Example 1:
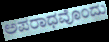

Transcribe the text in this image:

ಅಪರಾಧವೊಂದು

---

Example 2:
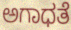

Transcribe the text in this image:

ಅಗಾಧತೆ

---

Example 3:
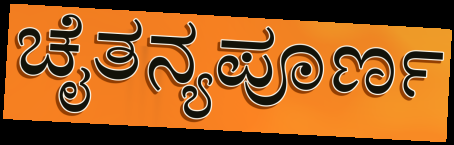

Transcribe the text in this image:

ಚೈತನ್ಯಪೂರ್ಣ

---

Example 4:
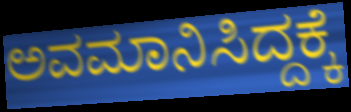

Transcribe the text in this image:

ಅವಮಾನಿಸಿದ್ದಕ್ಕೆ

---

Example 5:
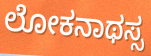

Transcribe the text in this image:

ಲೋಕನಾಥಸ್ಸ